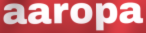
aaropa